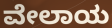
ವೇಲಾಯ